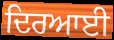
ਦਿਰਆਈ